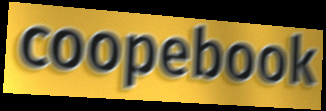
coopebook